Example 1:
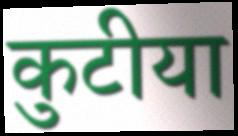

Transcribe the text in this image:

कुटीया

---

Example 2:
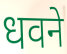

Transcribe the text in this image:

धवने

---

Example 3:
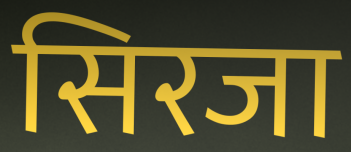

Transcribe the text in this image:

सिरजा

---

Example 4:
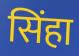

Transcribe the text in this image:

सिंहा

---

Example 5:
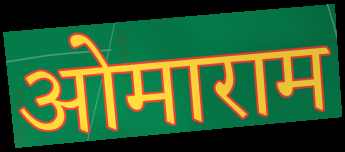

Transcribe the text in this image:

ओमाराम